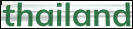
thailand